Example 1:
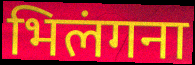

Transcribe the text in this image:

भिलंगना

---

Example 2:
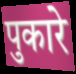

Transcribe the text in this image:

पुकारे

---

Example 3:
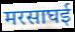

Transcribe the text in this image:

मरसाघई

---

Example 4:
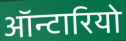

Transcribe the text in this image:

ऑन्टारियो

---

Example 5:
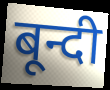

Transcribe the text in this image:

बून्दी